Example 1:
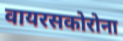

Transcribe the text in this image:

वायरसकोरोना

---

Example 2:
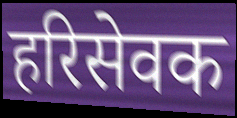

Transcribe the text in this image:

हरिसेवक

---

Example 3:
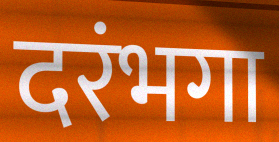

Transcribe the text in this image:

दरंभगा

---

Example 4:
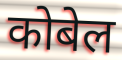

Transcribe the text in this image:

कोबेल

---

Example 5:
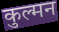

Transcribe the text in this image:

कुल्मन